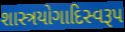
શાસ્ત્રયોગાદિસ્વરૂપ